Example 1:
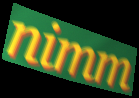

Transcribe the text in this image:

nimm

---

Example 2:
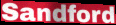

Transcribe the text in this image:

Sandford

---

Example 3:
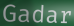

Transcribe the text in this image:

Gadar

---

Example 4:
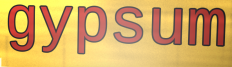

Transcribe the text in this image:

gypsum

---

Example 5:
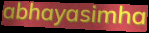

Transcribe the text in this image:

abhayasimha